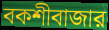
বকশীবাজার